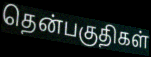
தென்பகுதிகள்